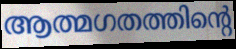
ആത്മഗതത്തിന്റെ